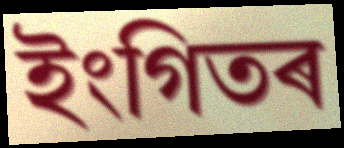
ইংগিতৰ